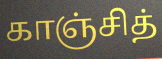
காஞ்சித்